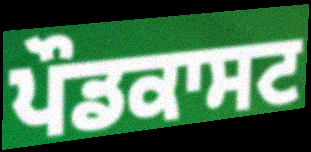
ਪੌਡਕਾਸਟ